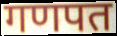
गणपत